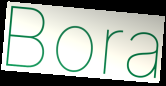
Bora